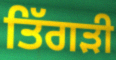
ਤਿੱਗੜੀ